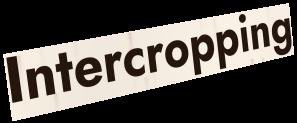
Intercropping